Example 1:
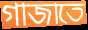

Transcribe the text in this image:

গাজাতে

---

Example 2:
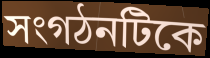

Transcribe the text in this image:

সংগঠনটিকে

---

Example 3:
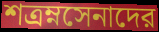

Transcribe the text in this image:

শত্রম্নসেনাদের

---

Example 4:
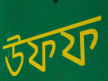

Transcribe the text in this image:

উফফ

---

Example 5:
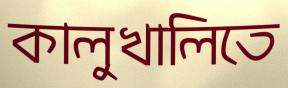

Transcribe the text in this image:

কালুখালিতে